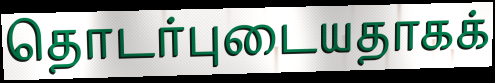
தொடர்புடையதாகக்